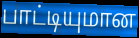
பாட்டியுமான